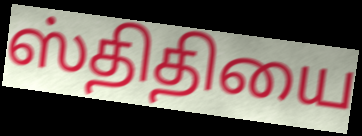
ஸ்திதியை